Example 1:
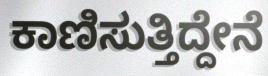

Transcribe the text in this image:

ಕಾಣಿಸುತ್ತಿದ್ದೇನೆ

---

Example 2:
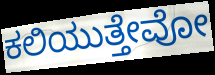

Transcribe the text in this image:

ಕಲಿಯುತ್ತೇವೋ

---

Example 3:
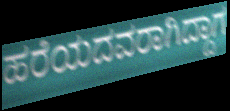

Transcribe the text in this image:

ಹರೆಯದವರಾಗಿದ್ದಾಗ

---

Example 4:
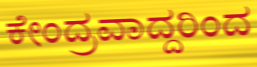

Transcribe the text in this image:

ಕೇಂದ್ರವಾದ್ದರಿಂದ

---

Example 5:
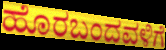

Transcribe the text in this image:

ಹೊರಬಂದವಳಿಗೆ